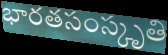
భారతసంస్కృతి